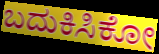
ಬದುಕಿಸಿಕೋ